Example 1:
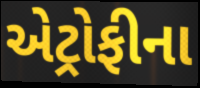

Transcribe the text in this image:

એટ્રોફીના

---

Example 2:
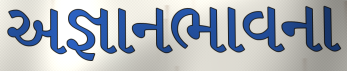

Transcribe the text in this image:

અજ્ઞાનભાવના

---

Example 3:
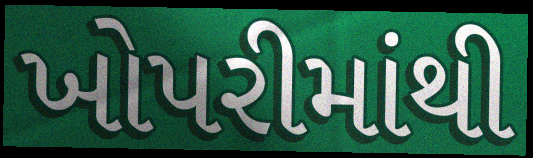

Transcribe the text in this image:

ખોપરીમાંથી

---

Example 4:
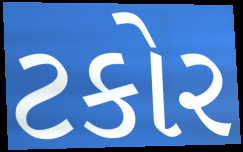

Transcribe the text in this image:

ટકોર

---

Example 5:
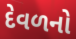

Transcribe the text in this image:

દેવળનો